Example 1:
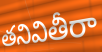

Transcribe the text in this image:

తనివితీరా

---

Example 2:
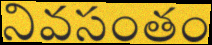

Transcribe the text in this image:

నివసంతం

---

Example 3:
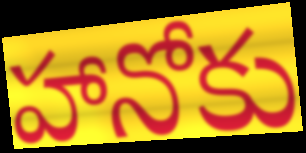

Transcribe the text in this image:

హానోకు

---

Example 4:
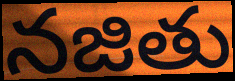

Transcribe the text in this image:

నజితు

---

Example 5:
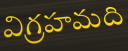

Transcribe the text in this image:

విగ్రహమది